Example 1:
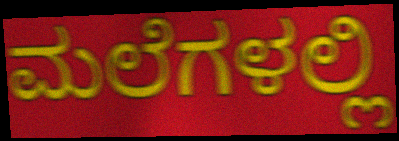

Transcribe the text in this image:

ಮಲೆಗಳಲ್ಲಿ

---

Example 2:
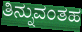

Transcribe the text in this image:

ತಿನ್ನುವಂತಹ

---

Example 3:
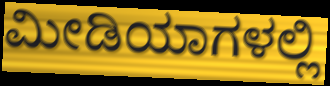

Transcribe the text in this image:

ಮೀಡಿಯಾಗಳಲ್ಲಿ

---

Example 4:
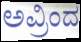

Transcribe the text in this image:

ಅವ್ರಿಂದ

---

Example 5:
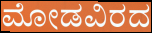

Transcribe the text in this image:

ಮೋಡವಿರದ